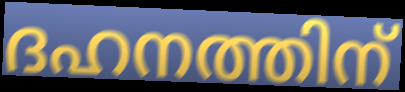
ദഹനത്തിന്